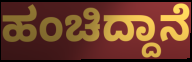
ಹಂಚಿದ್ದಾನೆ